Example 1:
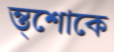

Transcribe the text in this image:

ম্ত্শোকে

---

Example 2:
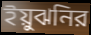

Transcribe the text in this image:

ইয়ুঝনির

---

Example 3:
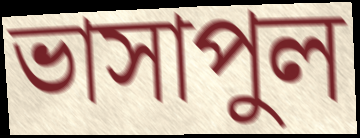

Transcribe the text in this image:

ভাসাপুল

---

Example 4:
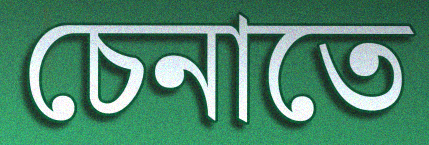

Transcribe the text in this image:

চেনাতে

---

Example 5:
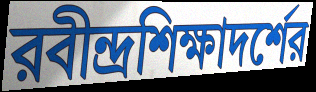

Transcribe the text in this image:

রবীন্দ্রশিক্ষাদর্শের